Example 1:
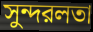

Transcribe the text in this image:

সুন্দরলতা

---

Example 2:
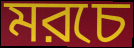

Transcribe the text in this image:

মরচে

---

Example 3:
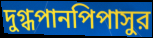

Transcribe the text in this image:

দুগ্ধপানপিপাসুর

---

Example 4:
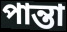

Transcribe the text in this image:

পান্তা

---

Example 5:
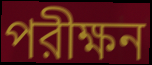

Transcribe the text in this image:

পরীক্ষন